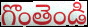
గొంతెండి